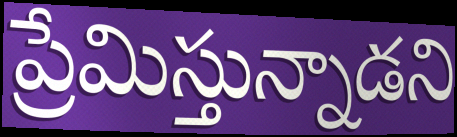
ప్రేమిస్తున్నాడని